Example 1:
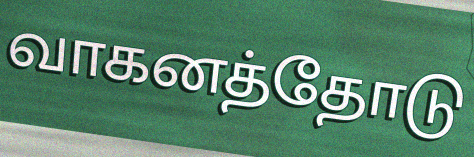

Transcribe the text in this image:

வாகனத்தோடு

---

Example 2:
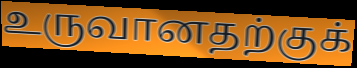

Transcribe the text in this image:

உருவானதற்குக்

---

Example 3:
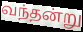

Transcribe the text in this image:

வந்தன்று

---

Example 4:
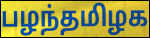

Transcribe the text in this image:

பழந்தமிழக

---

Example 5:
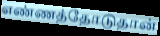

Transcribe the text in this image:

எண்ணத்தோடுதான்